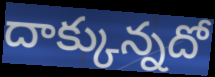
దాక్కున్నదో